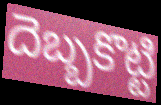
దెబ్బకొట్టి